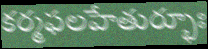
కర్మఫలహేతుర్భూః